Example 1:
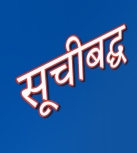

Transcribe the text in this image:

सूचीबद्घ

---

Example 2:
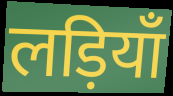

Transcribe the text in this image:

लड़ियाँ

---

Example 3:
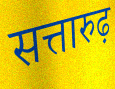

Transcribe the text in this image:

सत्तारुढ़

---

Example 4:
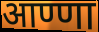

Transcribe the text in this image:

आण्णा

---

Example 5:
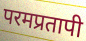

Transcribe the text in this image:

परमप्रतापी